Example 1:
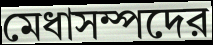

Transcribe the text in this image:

মেধাসম্পদের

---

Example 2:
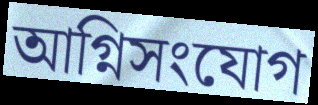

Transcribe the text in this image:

আগ্নিসংযোগ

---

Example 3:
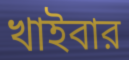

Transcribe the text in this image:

খাইবার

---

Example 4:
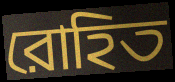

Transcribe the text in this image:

রোহিত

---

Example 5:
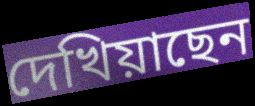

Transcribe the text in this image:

দেখিয়াছেন